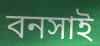
বনসাই